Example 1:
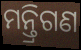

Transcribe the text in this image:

ମନ୍ତ୍ରିଗଣ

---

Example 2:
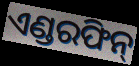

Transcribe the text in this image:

ଏଣ୍ଡରଫିନ୍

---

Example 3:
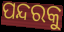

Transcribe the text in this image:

ପନ୍ଦରକୁ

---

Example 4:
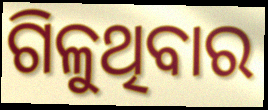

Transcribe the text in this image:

ଗିଳୁଥିବାର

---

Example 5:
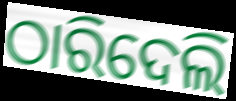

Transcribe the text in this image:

ଠାରିଦେଲି